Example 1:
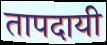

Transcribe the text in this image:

तापदायी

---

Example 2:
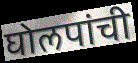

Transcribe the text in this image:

घोलपांची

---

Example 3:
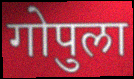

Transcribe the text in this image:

गोपुला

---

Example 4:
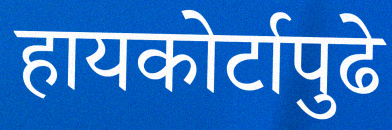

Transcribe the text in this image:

हायकोर्टापुढे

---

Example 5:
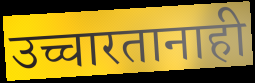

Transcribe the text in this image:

उच्चारतानाही